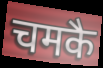
चमकै